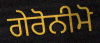
ਗੇਰੋਨੀਮੋ